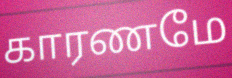
காரணமே